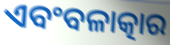
ଏବଂବଳାତ୍କାର